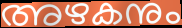
അഴകനും